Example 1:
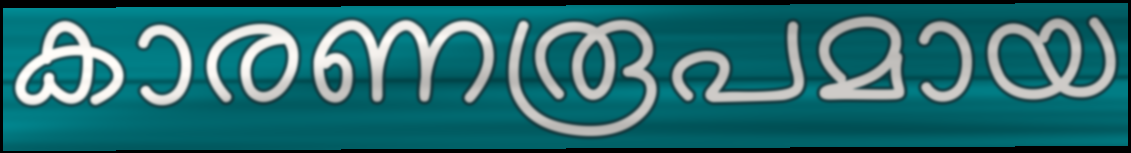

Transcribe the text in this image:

കാരണരൂപമായ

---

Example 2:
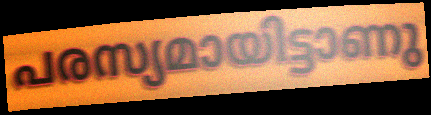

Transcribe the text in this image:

പരസ്യമായിട്ടാണു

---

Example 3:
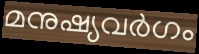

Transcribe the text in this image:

മനുഷ്യവർഗം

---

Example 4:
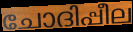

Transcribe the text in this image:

ചോദിപ്പീല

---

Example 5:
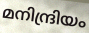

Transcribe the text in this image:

മനിന്ദ്രിയം